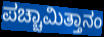
ಪಚ್ಚಾಮಿತ್ತಾನಂ